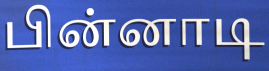
பின்னாடி